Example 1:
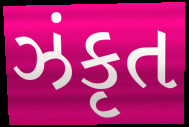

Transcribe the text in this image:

ઝંકૃત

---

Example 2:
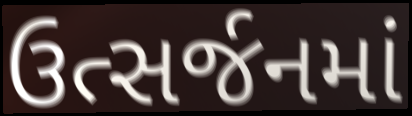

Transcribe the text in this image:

ઉત્સર્જનમાં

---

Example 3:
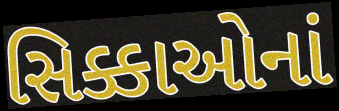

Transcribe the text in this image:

સિક્કાઓનાં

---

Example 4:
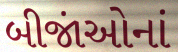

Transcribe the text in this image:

બીજાંઓનાં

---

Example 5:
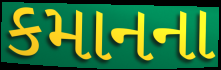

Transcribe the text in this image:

કમાનના